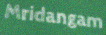
Mridangam